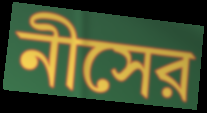
নীসের